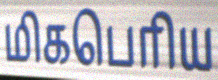
மிகபெரிய